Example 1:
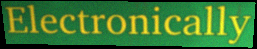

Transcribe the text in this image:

Electronically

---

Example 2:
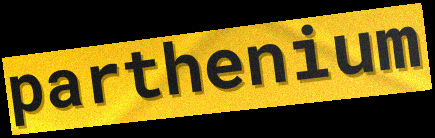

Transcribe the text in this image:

parthenium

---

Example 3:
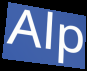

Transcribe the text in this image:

Alp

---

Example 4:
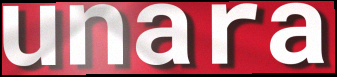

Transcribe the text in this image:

unara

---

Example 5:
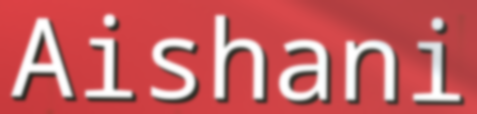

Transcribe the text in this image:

Aishani